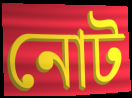
নোট